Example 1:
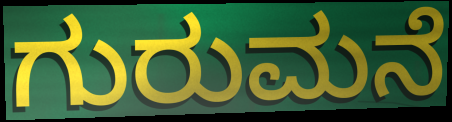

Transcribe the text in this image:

ಗುರುಮನೆ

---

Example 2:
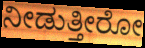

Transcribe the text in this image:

ನೀಡುತ್ತೀರೋ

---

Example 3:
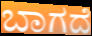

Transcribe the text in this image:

ಬಾಗದೆ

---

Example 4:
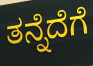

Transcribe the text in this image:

ತನ್ನೆದೆಗೆ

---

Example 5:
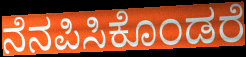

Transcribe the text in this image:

ನೆನಪಿಸಿಕೊಂಡರೆ